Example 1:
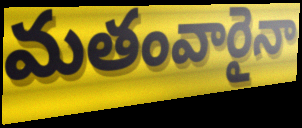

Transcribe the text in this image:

మతంవారైనా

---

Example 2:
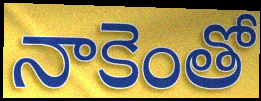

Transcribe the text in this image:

నాకెంతో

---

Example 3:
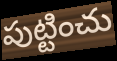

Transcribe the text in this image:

పుట్టించు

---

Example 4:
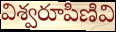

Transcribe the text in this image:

విశ్వరూపిణివి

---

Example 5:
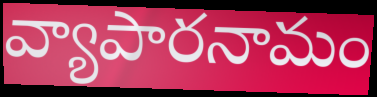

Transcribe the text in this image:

వ్యాపారనామం